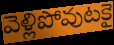
వెళ్లిపోవుటకై